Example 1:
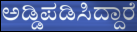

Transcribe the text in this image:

ಅಡ್ಡಿಪಡಿಸಿದ್ದಾರೆ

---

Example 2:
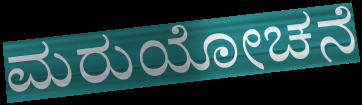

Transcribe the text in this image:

ಮರುಯೋಚನೆ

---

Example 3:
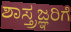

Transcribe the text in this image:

ಶಾಸ್ತ್ರಜ್ಞರಿಗೆ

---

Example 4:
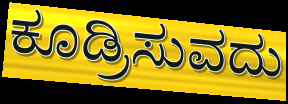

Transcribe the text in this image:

ಕೂಡ್ರಿಸುವದು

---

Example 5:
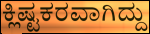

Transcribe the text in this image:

ಕ್ಲಿಷ್ಟಕರವಾಗಿದ್ದು